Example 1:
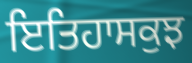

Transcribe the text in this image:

ਇਤਿਹਾਸਕੁਝ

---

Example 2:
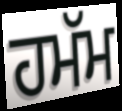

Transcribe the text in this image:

ਹਮੱਮ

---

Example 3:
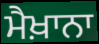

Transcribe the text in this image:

ਮੈਖ਼ਾਨਾ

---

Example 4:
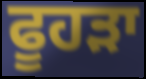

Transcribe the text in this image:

ਫੂਹੜਾ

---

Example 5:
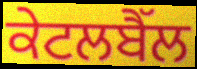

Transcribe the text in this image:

ਕੇਟਲਬੈੱਲ